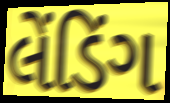
લેંડિંગ